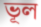
ভূল